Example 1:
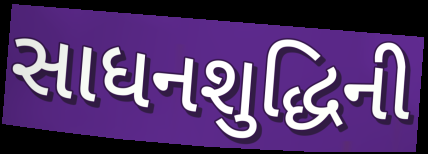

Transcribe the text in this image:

સાધનશુદ્ધિની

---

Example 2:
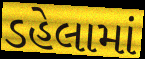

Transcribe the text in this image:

ડહેલામાં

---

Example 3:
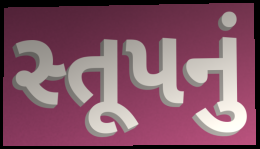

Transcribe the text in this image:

સ્તૂપનું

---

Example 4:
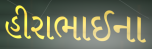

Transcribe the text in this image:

હીરાભાઈના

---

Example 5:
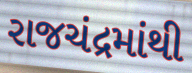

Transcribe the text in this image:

રાજચંદ્રમાંથી